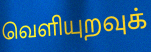
வெளியுறவுக்